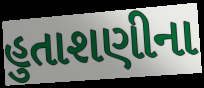
હુતાશણીના